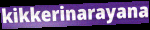
kikkerinarayana